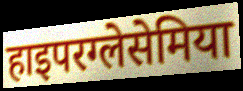
हाइपरग्लेसेमिया